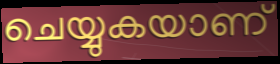
ചെയ്യുകയാണ്